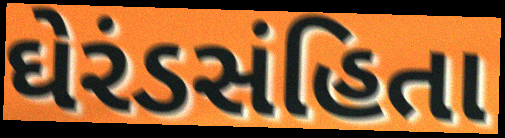
ઘેરંડસંહિતા